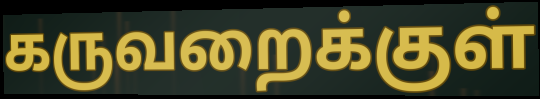
கருவறைக்குள்